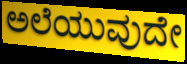
ಅಲೆಯುವುದೇ